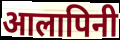
आलापिनी